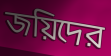
জয়িদের